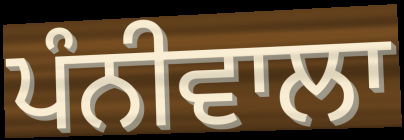
ਪੰਨੀਵਾਲਾ